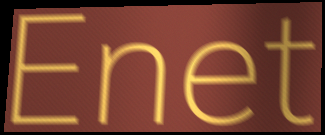
Enet